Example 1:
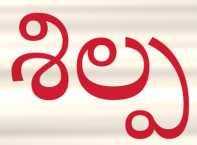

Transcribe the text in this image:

శిల్ప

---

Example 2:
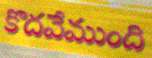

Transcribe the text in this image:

కొదవేముంది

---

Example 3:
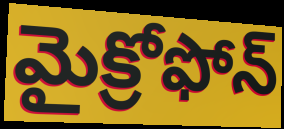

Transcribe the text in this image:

మైక్రోఫోన్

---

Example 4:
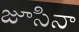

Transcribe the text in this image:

జూసినా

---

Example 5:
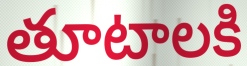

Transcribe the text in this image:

తూటాలకి